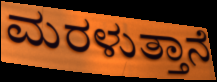
ಮರಳುತ್ತಾನೆ